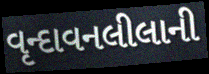
વૃન્દાવનલીલાની